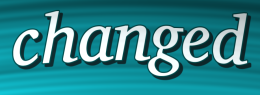
changed